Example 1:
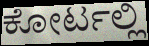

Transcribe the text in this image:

ಕೋರ್ಟಲ್ಲಿ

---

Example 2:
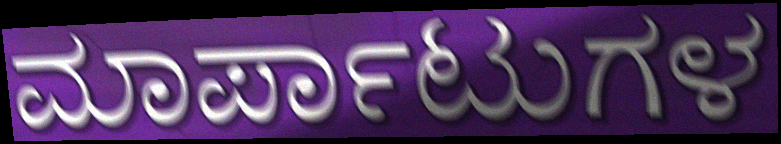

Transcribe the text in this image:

ಮಾರ್ಪಾಟುಗಳ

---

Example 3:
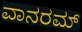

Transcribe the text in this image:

ವಾನರಮ್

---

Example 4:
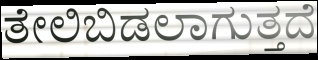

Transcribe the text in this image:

ತೇಲಿಬಿಡಲಾಗುತ್ತದೆ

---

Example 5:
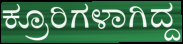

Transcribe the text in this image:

ಕ್ರೂರಿಗಳಾಗಿದ್ದ